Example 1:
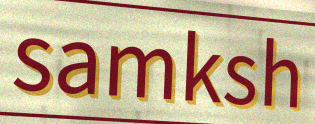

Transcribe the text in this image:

samksh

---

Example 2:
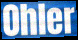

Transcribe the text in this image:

Ohler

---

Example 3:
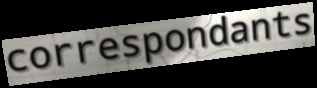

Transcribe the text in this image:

correspondants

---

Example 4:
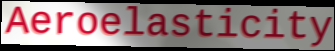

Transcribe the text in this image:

Aeroelasticity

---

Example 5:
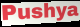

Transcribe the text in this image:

Pushya